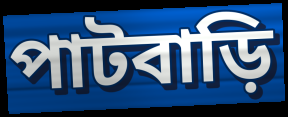
পাটবাড়ি